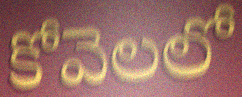
కోవెలలో